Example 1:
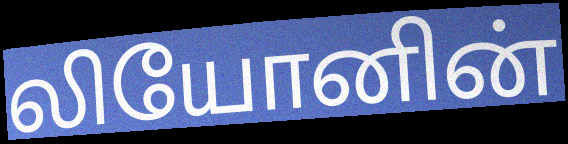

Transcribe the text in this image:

லியோனின்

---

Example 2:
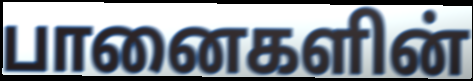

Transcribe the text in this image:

பானைகளின்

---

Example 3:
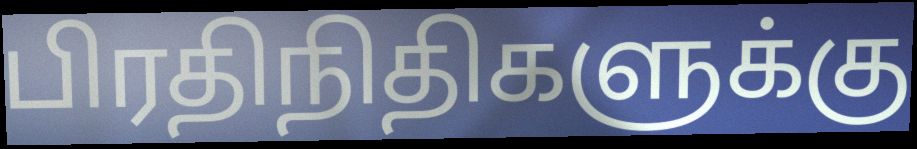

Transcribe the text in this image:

பிரதிநிதிகளுக்கு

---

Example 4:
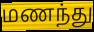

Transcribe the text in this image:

மணந்து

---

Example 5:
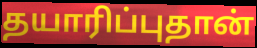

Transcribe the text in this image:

தயாரிப்புதான்